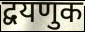
द्वयणुक